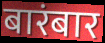
बारंबार